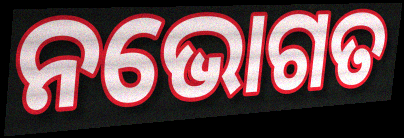
ନଭୋଗତ